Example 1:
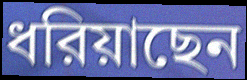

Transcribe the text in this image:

ধরিয়াছেন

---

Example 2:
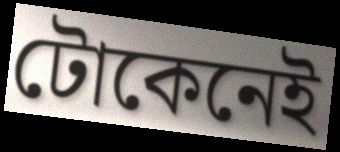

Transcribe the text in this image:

টোকেনেই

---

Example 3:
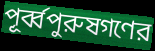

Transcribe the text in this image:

পূর্ব্বপুরুষগণের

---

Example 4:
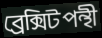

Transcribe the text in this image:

ব্রেক্সিটপন্থী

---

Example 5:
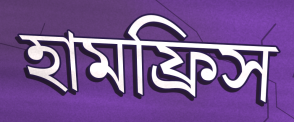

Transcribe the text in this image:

হামফ্রিস